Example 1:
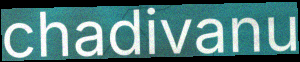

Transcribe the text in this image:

chadivanu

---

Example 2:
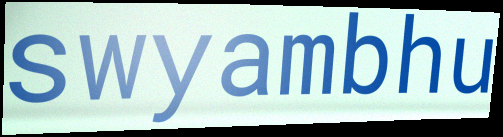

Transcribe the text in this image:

swyambhu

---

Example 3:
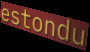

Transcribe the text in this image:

estondu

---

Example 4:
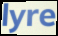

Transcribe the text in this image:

lyre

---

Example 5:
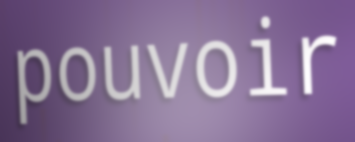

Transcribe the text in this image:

pouvoir